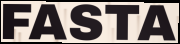
FASTA